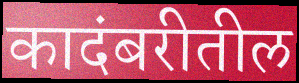
कादंबरीतील